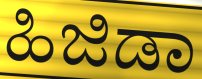
ಹಿಜಿಡಾ